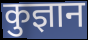
कुज्ञान